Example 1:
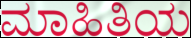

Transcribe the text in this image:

ಮಾಹಿತಿಯ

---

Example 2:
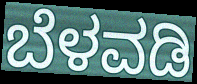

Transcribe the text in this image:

ಬೆಳವಡಿ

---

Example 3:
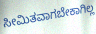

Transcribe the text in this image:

ಸೀಮಿತವಾಗಬೇಕಾಗಿಲ್ಲ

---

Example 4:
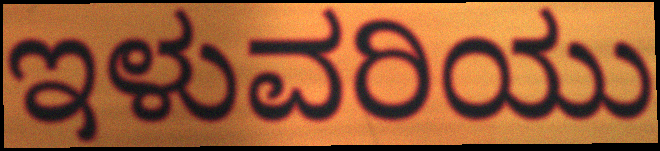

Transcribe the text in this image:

ಇಳುವರಿಯು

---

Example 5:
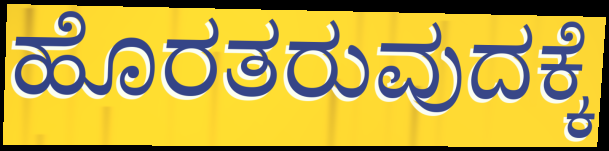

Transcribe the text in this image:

ಹೊರತರುವುದಕ್ಕೆ